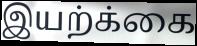
இயற்க்கை